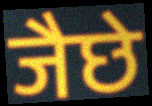
जैछे